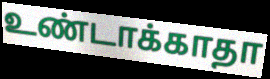
உண்டாக்காதா